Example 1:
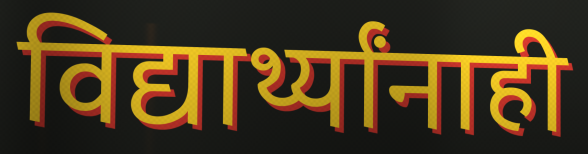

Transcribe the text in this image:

विद्यार्थ्यांनाही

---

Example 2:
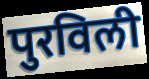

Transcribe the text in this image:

पुरविली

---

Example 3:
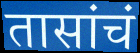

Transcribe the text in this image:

तासांचं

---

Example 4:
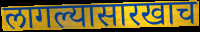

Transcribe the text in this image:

लागल्यासारखाच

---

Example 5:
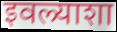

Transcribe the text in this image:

इवल्याशा